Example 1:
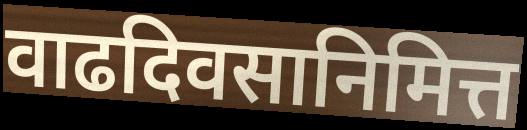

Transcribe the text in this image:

वाढदिवसानिमित्त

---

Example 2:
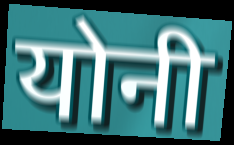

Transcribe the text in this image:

योनी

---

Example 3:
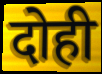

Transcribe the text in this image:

दोही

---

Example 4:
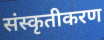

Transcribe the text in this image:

संस्कृतीकरण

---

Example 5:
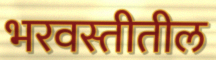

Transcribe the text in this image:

भरवस्तीतील